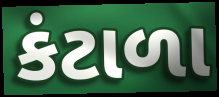
કંટાળા